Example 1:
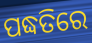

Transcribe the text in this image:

ପଦ୍ଧତିରେ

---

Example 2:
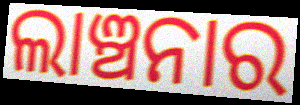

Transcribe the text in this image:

ଲାଞ୍ଚନାର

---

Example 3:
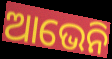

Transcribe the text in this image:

ଆଭେନି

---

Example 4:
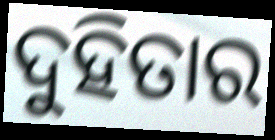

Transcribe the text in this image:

ଦୁହିତାର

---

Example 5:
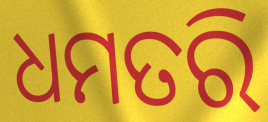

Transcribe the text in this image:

ଧମତରି